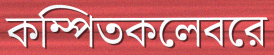
কম্পিতকলেবরে